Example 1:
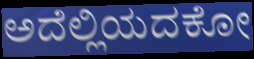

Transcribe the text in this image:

ಅದೆಲ್ಲಿಯದಕೋ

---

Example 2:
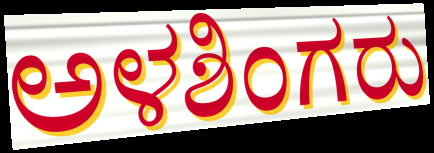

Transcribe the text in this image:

ಅಳಶಿಂಗರು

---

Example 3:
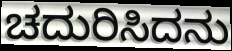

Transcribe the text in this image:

ಚದುರಿಸಿದನು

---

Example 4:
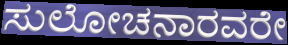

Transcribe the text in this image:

ಸುಲೋಚನಾರವರೇ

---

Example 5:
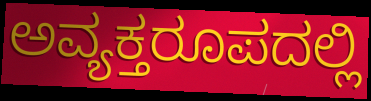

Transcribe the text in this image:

ಅವ್ಯಕ್ತರೂಪದಲ್ಲಿ